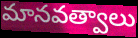
మానవత్వాలు